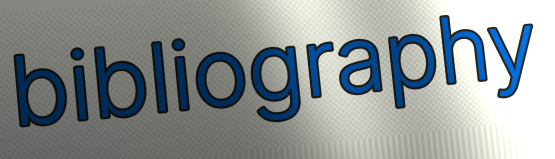
bibliography